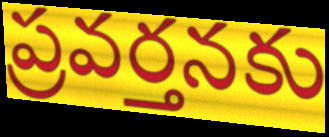
ప్రవర్తనకు